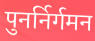
पुनर्निर्गमन